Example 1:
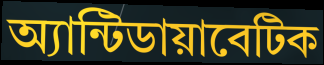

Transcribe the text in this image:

অ্যান্টিডায়াবেটিক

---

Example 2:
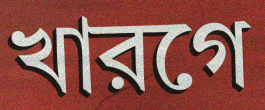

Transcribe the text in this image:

খারগে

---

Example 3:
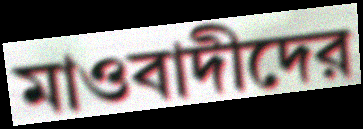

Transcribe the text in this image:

মাওবাদীদের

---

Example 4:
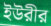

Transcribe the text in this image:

ইউরীর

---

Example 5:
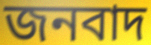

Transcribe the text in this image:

জনবাদ